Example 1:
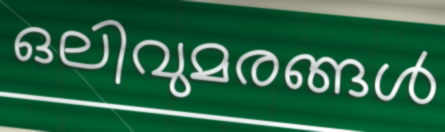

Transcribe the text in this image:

ഒലിവുമരങ്ങൾ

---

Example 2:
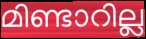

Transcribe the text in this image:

മിണ്ടാറില്ല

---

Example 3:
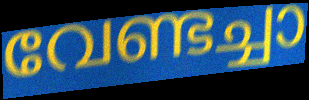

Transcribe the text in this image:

വേണ്ടച്ചാ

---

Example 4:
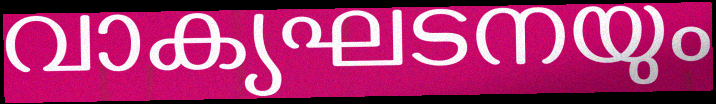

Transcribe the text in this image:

വാക്യഘടനയും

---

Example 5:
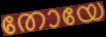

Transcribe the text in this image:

തോയേ